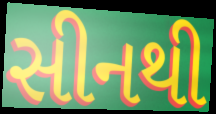
સીનથી